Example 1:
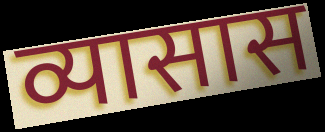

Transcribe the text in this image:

व्यासास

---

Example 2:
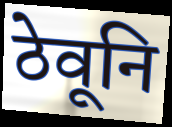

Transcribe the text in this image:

ठेवूनि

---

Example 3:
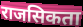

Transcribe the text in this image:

राजसिकता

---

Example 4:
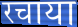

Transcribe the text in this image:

रचाया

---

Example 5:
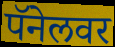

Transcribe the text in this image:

पॅनेलवर